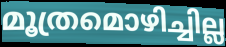
മൂത്രമൊഴിച്ചില്ല